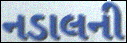
નડાલની